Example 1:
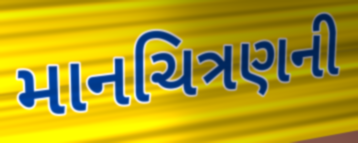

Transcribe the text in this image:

માનચિત્રણની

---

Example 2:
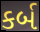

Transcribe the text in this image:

કર્બ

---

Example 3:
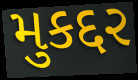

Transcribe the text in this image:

મુકદ્દર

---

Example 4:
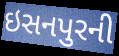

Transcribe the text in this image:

ઇસનપુરની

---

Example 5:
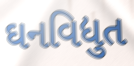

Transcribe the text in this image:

ઘનવિદ્યુત